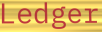
Ledger